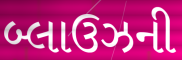
બ્લાઉઝની